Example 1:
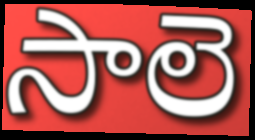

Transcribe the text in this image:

సాలె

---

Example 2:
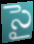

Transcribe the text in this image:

సై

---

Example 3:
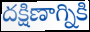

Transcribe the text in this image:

దక్షిణాగ్నికి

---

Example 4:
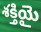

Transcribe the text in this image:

శక్తియై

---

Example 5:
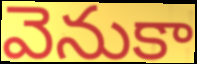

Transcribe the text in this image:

వెనుకా